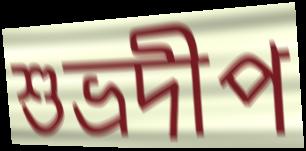
শুভ্রদীপ